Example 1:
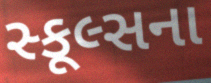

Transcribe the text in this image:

સ્કૂલ્સના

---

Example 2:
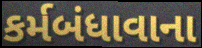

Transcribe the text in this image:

કર્મબંધાવાના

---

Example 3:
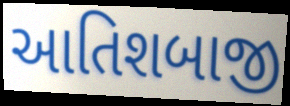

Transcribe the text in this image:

આતિશબાજી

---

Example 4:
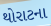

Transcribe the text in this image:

થોરાટના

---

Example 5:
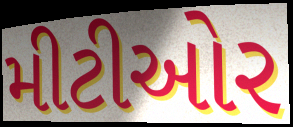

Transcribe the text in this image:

મીટીઓર